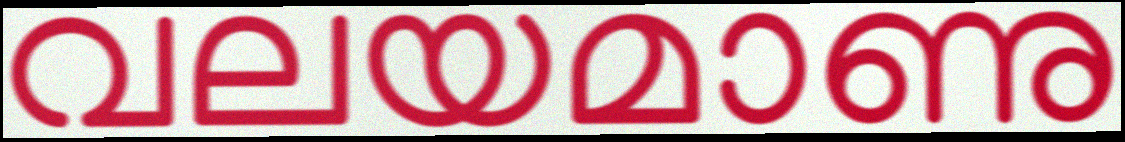
വലയമാണു